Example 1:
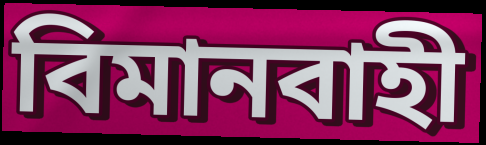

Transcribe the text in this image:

বিমানবাহী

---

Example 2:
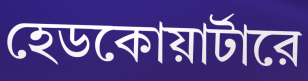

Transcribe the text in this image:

হেডকোয়ার্টারে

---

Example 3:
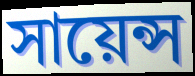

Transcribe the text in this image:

সায়েন্স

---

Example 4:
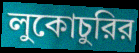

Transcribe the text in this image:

লুকোচুরির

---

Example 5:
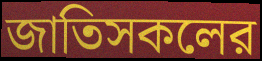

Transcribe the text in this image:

জাতিসকলের